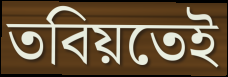
তবিয়তেই